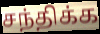
சந்திக்க